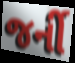
જર્ની